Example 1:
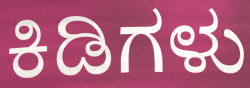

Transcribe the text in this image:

ಕಿಡಿಗಳು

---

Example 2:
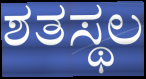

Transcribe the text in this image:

ಶತಸ್ಥಲ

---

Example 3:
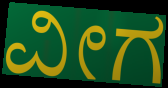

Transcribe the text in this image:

ವೀಗ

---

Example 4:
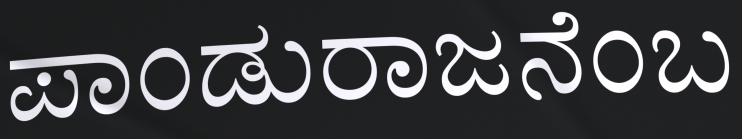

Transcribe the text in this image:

ಪಾಂಡುರಾಜನೆಂಬ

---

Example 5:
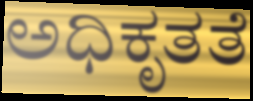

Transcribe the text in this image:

ಅಧಿಕೃತತೆ